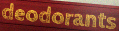
deodorants